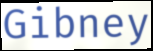
Gibney